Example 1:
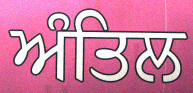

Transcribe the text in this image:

ਅੰਤਿਲ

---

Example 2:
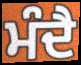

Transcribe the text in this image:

ਮੰਦੈ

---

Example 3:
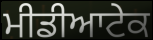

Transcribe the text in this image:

ਮੀਡੀਆਟੇਕ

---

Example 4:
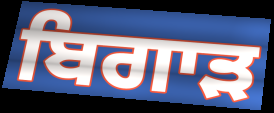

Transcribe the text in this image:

ਬਿਗਾੜ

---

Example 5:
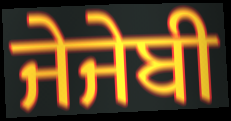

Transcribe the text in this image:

ਜੇਜੇਬੀ